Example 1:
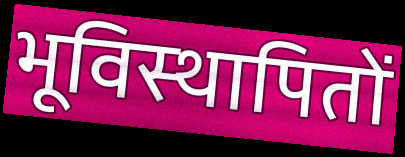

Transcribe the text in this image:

भूविस्थापितों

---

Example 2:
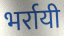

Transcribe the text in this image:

भर्रायी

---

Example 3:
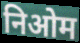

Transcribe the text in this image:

निओम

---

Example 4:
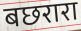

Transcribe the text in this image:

बछरारा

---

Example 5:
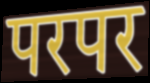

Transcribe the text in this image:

परपर